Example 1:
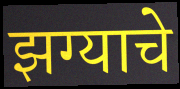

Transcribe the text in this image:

झग्याचे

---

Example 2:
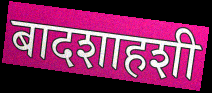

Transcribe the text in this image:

बादशाहशी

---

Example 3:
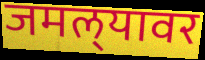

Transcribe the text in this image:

जमल्यावर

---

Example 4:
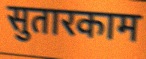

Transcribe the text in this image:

सुतारकाम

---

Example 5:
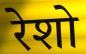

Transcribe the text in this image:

रेशो